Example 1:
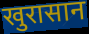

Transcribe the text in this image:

खुरासान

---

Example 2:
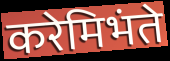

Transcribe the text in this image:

करेमिभंते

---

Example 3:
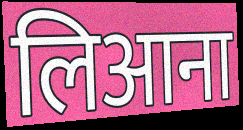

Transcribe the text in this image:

लिआना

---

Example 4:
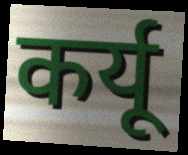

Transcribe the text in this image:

कर्यू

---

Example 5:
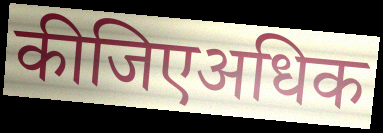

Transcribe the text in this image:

कीजिएअधिक